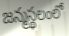
జన్మస్థలంలో